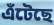
এঁটেছে